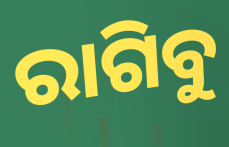
ରାଗିବୁ